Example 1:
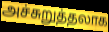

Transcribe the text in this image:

அச்சுறுத்தலாக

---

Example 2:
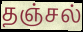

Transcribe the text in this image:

தஞ்சல்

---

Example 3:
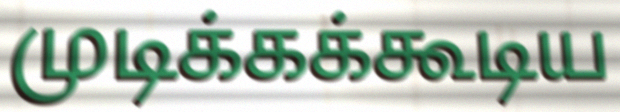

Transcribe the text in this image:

முடிக்கக்கூடிய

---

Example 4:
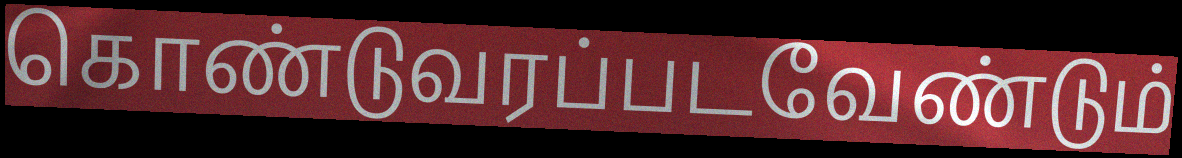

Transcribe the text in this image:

கொண்டுவரப்படவேண்டும்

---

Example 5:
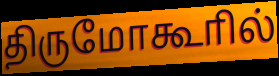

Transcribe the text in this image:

திருமோகூரில்